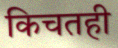
किचतही